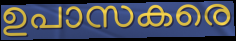
ഉപാസകരെ